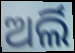
ଅର୍ଲି